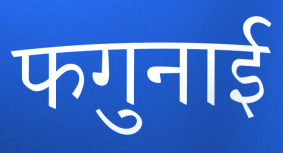
फगुनाई